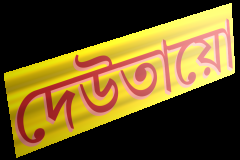
দেউতায়ো